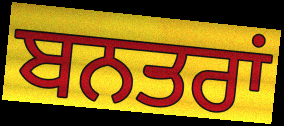
ਬਨਤਰਾਂ